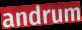
andrum